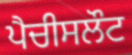
ਪੈਚੀਸਲੌਟ